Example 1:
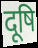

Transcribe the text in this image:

दूषि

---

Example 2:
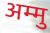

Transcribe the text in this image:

अम्मु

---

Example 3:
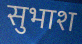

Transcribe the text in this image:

सुभाश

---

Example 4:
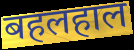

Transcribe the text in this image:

बहलहाल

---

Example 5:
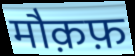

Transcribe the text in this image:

मौक़फ़